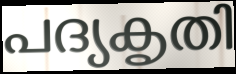
പദ്യകൃതി